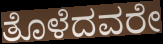
ತೊಳೆದವರೇ